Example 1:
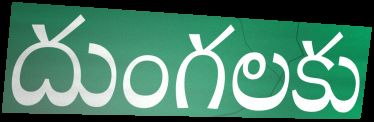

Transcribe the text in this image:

దుంగలకు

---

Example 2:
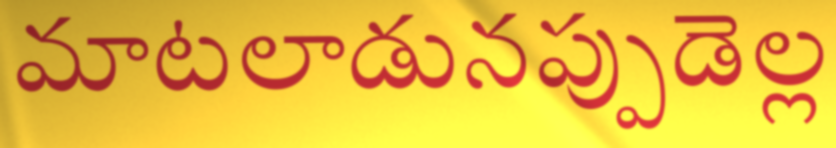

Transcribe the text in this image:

మాటలాడునప్పుడెల్ల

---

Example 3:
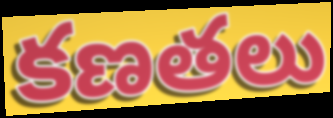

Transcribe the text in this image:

కణతలు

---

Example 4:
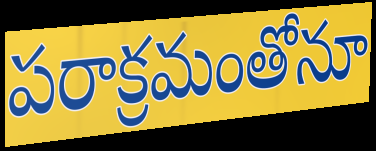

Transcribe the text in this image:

పరాక్రమంతోనూ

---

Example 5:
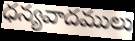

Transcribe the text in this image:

ధన్యవాదములు